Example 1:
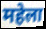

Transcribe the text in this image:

महेला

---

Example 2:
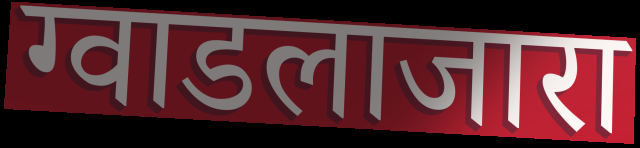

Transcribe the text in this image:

ग्वाडलाजारा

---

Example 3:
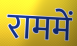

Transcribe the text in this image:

राममें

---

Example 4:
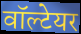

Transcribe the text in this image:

वॉल्टेयर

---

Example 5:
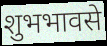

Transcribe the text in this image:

शुभभावसे